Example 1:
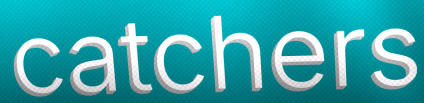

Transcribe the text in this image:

catchers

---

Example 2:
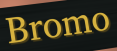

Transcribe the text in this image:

Bromo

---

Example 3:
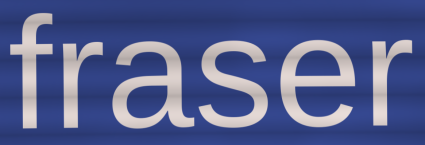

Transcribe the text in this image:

fraser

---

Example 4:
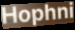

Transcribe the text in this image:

Hophni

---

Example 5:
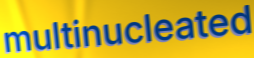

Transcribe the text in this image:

multinucleated